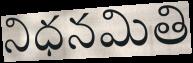
నిధనమితి